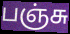
பஞ்சு